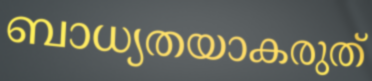
ബാധ്യതയാകരുത്